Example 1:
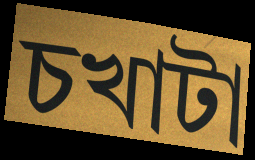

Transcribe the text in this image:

চখাটা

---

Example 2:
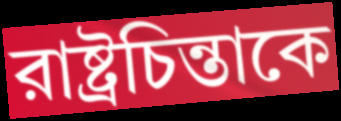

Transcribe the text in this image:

রাষ্ট্রচিন্তাকে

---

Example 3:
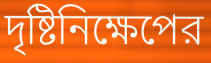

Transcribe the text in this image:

দৃষ্টিনিক্ষেপের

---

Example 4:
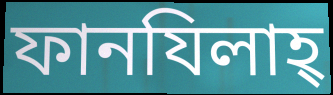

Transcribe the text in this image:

ফানযিলাহ্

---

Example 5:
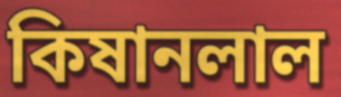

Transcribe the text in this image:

কিষানলাল